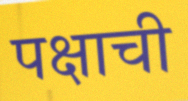
पक्षाची